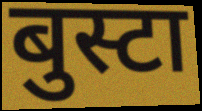
बुस्टा